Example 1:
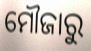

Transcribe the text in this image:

ମୌଜାରୁ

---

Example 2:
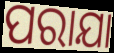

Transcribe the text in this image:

ପରାଯା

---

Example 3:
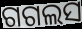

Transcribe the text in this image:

ଗଗଲସ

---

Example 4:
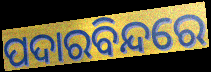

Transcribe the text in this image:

ପଦାରବିନ୍ଦରେ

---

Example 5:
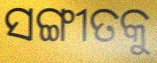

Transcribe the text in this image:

ସଙ୍ଗୀତକୁ